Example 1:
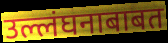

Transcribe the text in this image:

उल्लंघनाबाबत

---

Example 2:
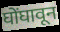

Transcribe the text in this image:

घोंघावून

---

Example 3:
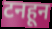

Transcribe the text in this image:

टनहून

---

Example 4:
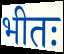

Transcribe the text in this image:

भीतः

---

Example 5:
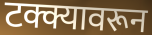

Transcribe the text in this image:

टक्क्यावरून